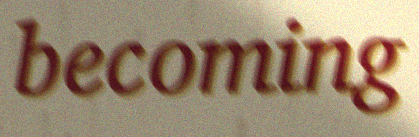
becoming